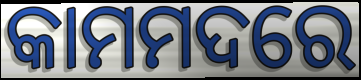
କାମମଦରେ